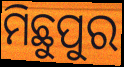
ମିଛୁପୁର